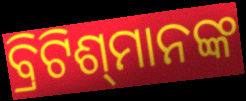
ବ୍ରିଟିଶ୍‌ମାନଙ୍କ